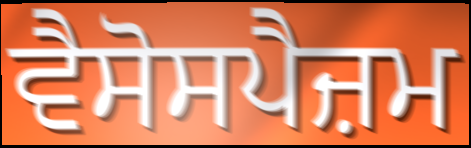
ਵੈਸੋਸਪੈਜ਼ਮ